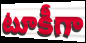
టూకీగా